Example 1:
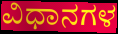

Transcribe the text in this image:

ವಿಧಾನಗಳ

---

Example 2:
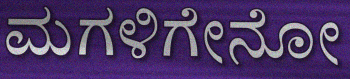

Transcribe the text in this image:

ಮಗಳಿಗೇನೋ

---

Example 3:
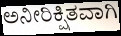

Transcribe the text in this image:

ಅನೀರಿಕ್ಷಿತವಾಗಿ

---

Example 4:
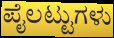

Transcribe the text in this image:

ಪೈಲಟ್ಟುಗಳು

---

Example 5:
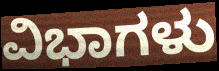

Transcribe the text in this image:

ವಿಭಾಗಳು